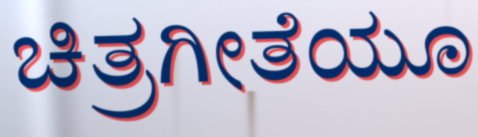
ಚಿತ್ರಗೀತೆಯೂ